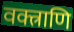
वक्त्राणि